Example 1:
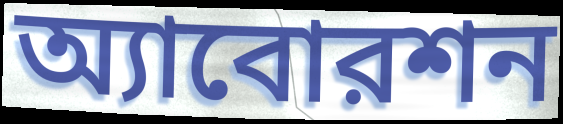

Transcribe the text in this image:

অ্যাবোরশন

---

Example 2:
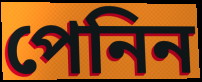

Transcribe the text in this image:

পেনিন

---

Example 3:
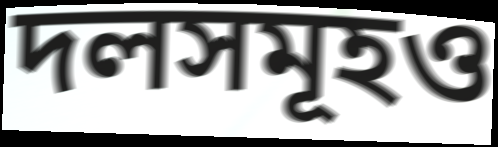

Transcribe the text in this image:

দলসমূহও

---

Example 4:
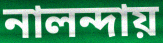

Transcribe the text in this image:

নালন্দায়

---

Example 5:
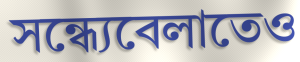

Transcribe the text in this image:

সন্ধ্যেবেলাতেও